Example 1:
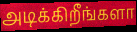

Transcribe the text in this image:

அடிக்கிறீங்களா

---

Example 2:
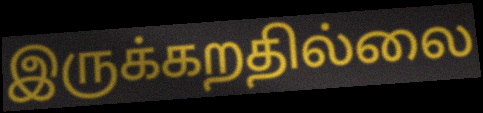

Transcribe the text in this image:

இருக்கறதில்லை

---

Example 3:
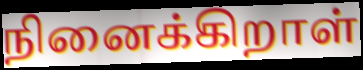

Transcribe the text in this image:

நினைக்கிறாள்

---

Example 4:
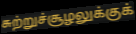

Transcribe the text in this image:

சுற்றுச்சூழலுக்குக்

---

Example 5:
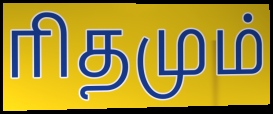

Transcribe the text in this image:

ரிதமும்